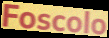
Foscolo